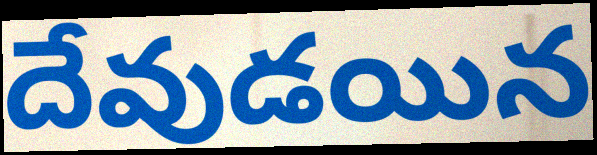
దేవుడయిన